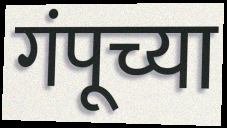
गंपूच्या